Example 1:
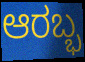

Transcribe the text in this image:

ಆರಬ್ಭ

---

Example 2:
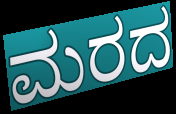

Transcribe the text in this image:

ಮರದ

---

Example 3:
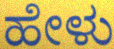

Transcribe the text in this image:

ಹೇಳು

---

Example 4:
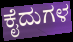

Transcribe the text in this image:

ಕೈದುಗಳ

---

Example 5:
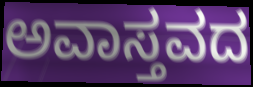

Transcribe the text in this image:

ಅವಾಸ್ತವದ